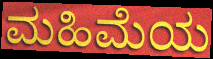
ಮಹಿಮೆಯ